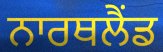
ਨਾਰਥਲੈਂਡ